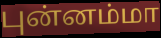
புன்னம்மா